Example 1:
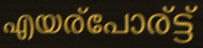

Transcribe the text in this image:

എയര്പോര്ട്ട്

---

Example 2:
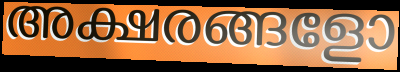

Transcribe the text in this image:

അക്ഷരങ്ങളോ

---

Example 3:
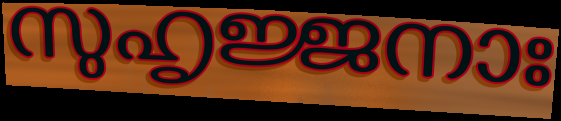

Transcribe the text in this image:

സുഹൃജ്ജനാഃ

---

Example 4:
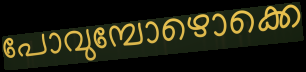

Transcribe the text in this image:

പോവുമ്പോഴൊക്കെ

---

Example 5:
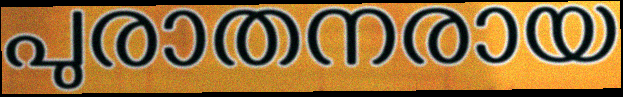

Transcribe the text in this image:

പുരാതനരായ